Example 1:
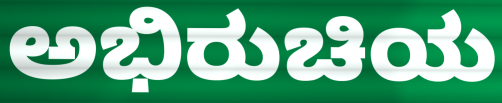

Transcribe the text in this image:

ಅಭಿರುಚಿಯ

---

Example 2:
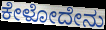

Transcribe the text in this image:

ಕೇಳೋದೇನು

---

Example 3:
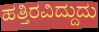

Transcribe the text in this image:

ಹತ್ತಿರವಿದ್ದುದು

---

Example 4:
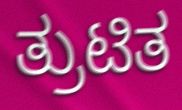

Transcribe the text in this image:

ತ್ರುಟಿತ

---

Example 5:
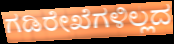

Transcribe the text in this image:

ಗಡಿರೇಖೆಗಳಿಲ್ಲದ